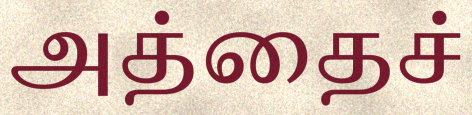
அத்தைச்